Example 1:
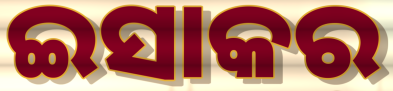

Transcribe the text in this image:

ଇସାକର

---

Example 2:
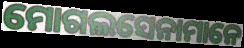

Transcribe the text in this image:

ମୋଗଲସେନାମାନେ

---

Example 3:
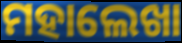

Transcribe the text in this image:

ମହାଲେଖା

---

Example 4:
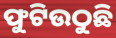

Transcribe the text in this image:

ଫୁଟିଉଠୁଛି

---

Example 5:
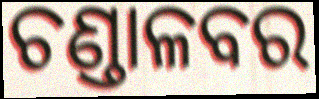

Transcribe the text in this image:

ଚଣ୍ଡାଳବର